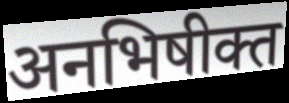
अनभिषीक्त